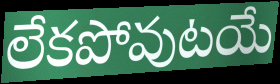
లేకపోవుటయే